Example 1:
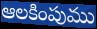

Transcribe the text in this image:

ఆలకింపుము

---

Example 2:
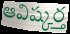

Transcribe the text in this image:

ఆవిష్కర్త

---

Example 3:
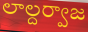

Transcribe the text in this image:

లాల్దర్వాజ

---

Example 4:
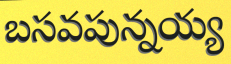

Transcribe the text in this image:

బసవపున్నయ్య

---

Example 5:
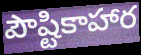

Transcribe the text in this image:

పౌష్టికాహార